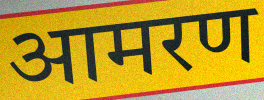
आमरण